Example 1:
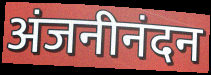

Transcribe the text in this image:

अंजनीनंदन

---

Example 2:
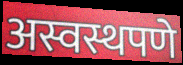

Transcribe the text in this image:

अस्वस्थपणे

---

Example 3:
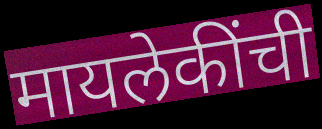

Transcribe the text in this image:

मायलेकींची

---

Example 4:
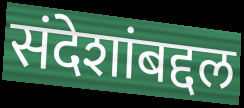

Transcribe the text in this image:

संदेशांबद्दल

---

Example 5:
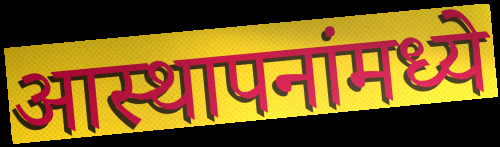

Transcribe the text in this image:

आस्थापनांमध्ये